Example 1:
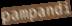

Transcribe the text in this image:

pampandi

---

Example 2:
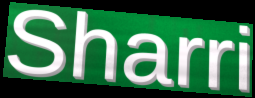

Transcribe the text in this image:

Sharri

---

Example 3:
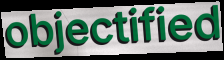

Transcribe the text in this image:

objectified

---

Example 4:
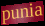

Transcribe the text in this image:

punia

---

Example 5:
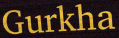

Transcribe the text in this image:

Gurkha